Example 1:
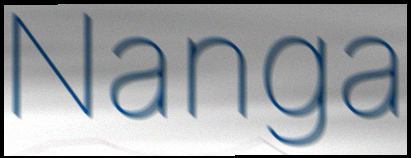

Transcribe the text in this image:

Nanga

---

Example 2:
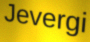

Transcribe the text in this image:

Jevergi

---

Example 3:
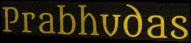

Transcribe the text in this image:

Prabhudas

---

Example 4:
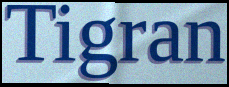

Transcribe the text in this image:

Tigran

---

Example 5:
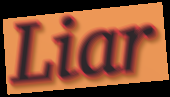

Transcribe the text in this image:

Liar